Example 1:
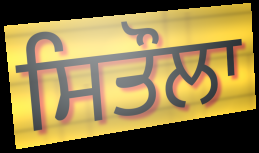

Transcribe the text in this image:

ਸਿਤੌਲਾ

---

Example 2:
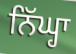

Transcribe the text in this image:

ਨਿੱਘ੍ਹਾ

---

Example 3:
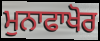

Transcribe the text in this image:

ਮੁਨਾਫਾਖੋਰ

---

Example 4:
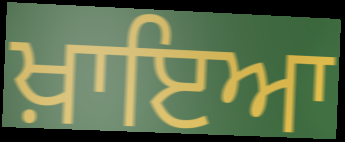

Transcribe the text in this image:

ਖ਼ਾਇਆ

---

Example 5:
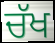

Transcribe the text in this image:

ਚੱਖ